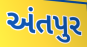
અંતપુર